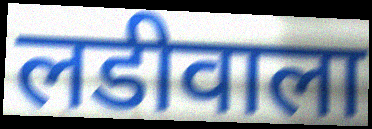
लडीवाला